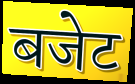
बजेट